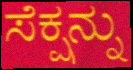
ಸೆಕ್ಷನ್ನು